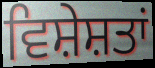
ਵਿਸ਼ੇਸ਼ਤਾਂ